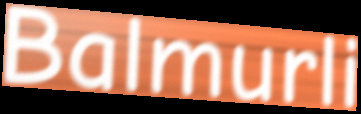
Balmurli